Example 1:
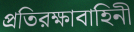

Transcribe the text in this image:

প্রতিরক্ষাবাহিনী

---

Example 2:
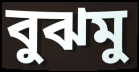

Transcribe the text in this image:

বুঝমু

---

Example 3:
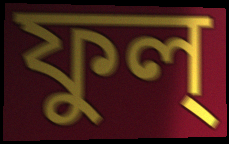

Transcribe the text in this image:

ফুল্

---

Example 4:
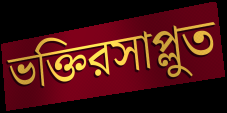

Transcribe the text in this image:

ভক্তিরসাপ্লুত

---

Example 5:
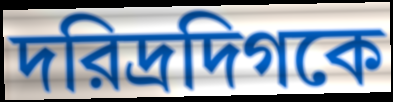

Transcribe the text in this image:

দরিদ্রদিগকে